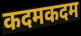
कदमकदम